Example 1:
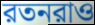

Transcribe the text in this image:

রতনরাও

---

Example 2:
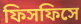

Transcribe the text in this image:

ফিসফিসে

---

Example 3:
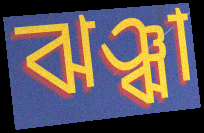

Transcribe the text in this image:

ঝঞ্ঝা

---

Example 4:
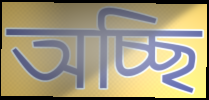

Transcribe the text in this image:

অচ্ছি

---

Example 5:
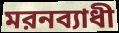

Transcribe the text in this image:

মরনব্যাধী